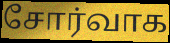
சோர்வாக